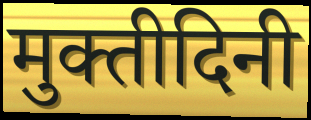
मुक्तीदिनी